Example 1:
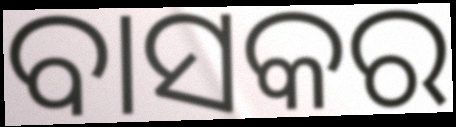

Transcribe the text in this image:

ବାସକର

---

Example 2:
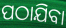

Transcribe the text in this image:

ପଠାଯିବା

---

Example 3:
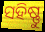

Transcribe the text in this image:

ସହିଷ୍ଣୁ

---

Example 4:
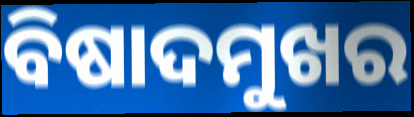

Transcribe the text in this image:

ବିଷାଦମୁଖର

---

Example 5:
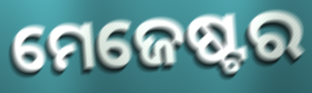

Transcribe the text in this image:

ମେଜେଷ୍ଟର